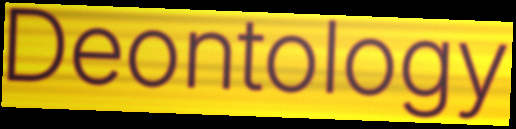
Deontology